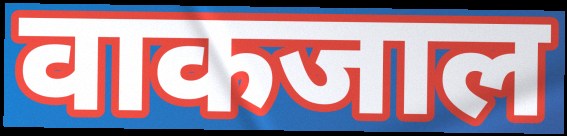
वाकजाल